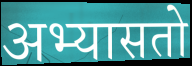
अभ्यासतो